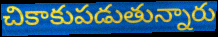
చికాకుపడుతున్నారు